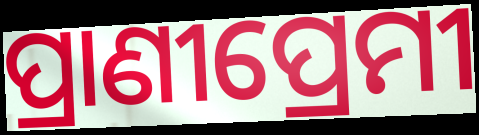
ପ୍ରାଣୀପ୍ରେମୀ